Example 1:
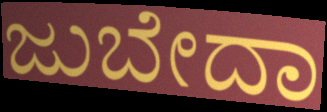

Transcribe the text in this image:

ಜುಬೇದಾ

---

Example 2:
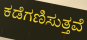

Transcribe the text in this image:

ಕಡೆಗಣಿಸುತ್ತವೆ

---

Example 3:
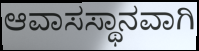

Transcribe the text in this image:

ಆವಾಸಸ್ಥಾನವಾಗಿ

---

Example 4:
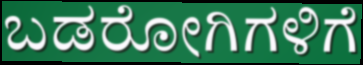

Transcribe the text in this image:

ಬಡರೋಗಿಗಳಿಗೆ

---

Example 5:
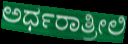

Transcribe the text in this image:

ಅರ್ಧರಾತ್ರೀಲಿ